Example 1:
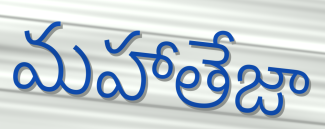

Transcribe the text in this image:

మహాతేజా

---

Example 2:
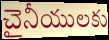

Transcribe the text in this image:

చైనీయులకు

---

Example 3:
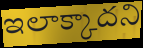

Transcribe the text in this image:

ఇలాక్కాదని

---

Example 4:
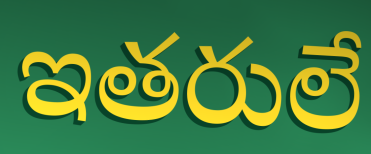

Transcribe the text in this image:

ఇతరులే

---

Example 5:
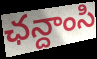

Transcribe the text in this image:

ఛన్దాంసి